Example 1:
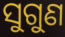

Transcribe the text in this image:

ସୁଗୁଣ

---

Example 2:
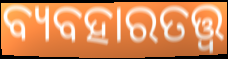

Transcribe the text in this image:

ବ୍ୟବହାରତତ୍ତ୍ବ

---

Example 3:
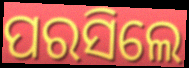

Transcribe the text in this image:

ପରସିଲେ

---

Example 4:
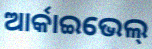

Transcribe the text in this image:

ଆର୍କାଇଭେଲ୍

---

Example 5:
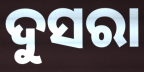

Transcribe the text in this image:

ଦୁସରା